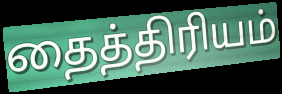
தைத்திரியம்